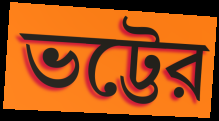
ভট্টের